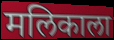
मलिकाला